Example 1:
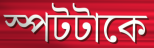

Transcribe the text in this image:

স্পটটাকে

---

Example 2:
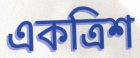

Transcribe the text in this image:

একত্রিশ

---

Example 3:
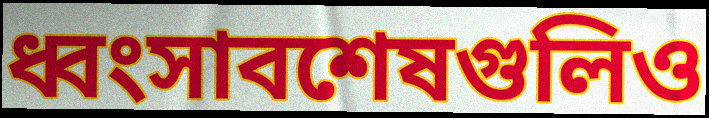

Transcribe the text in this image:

ধ্বংসাবশেষগুলিও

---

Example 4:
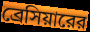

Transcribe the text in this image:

ব্রেসিয়ারের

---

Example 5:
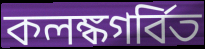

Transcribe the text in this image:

কলঙ্কগর্বিত